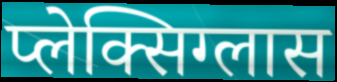
प्लेक्सिग्लास